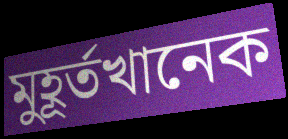
মুহূর্তখানেক